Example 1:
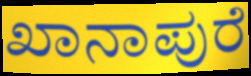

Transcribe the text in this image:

ಖಾನಾಪುರೆ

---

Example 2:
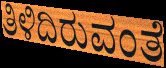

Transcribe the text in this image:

ತಿಳಿದಿರುವಂತೆ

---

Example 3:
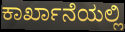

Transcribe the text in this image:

ಕಾರ್ಖಾನೆಯಲ್ಲಿ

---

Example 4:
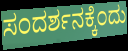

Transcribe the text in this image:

ಸಂದರ್ಶನಕ್ಕೆಂದು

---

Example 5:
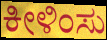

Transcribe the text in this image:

ಕೀಳಿಂಸು